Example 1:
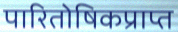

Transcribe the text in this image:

पारितोषिकप्राप्त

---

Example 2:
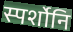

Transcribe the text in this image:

स्पर्शोनि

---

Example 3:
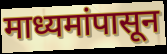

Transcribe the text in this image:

माध्यमांपासून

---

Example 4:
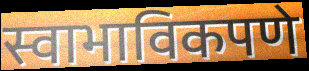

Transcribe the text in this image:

स्वाभाविकपणे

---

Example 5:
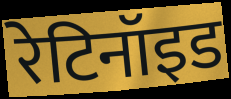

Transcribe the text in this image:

रेटिनॉइड